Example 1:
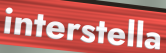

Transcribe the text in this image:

interstella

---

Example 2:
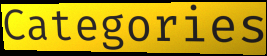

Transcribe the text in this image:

Categories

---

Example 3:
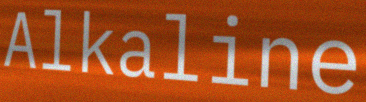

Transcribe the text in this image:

Alkaline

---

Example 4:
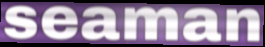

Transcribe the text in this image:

seaman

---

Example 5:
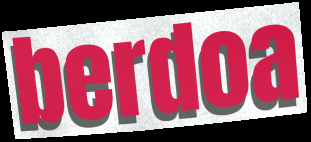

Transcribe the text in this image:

berdoa